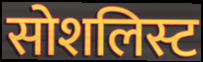
सोशलिस्‍ट